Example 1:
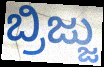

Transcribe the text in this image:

ಬ್ರಿಜ್ಜು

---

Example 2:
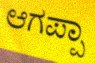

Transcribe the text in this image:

ಆಗಪ್ಪಾ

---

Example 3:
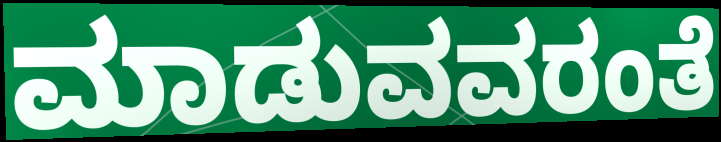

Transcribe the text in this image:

ಮಾಡುವವರಂತೆ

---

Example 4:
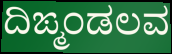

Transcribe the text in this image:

ದಿಙ್ಮಂಡಲವ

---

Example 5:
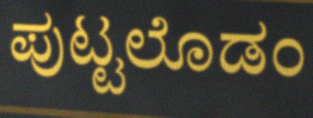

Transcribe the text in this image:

ಪುಟ್ಟಲೊಡಂ